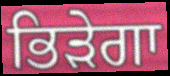
ਭਿੜੇਗਾ